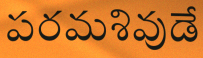
పరమశివుడే